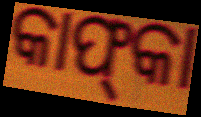
କାଫ୍‍କା